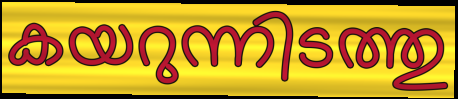
കയറുന്നിടത്തു